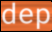
dep